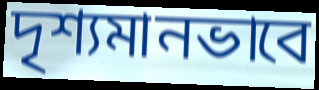
দৃশ্যমানভাবে